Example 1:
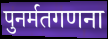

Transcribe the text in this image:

पुनर्मतगणना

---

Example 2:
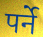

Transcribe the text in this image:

पर्ने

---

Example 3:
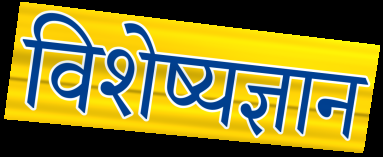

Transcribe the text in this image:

विशेष्यज्ञान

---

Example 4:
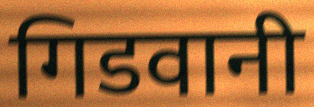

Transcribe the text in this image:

गिडवानी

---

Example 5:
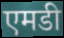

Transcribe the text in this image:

एमडी